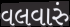
વલવારું